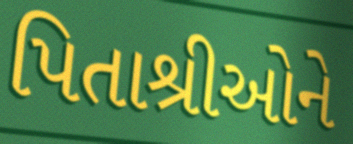
પિતાશ્રીઓને